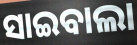
ସାଇବାଲା